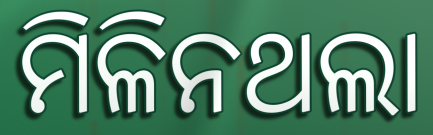
ମିଳିନଥଲା